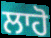
ਲਾਹੋ